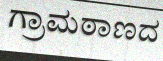
ಗ್ರಾಮಠಾಣದ